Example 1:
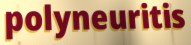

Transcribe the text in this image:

polyneuritis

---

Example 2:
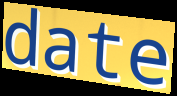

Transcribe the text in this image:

date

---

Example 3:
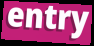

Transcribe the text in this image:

entry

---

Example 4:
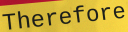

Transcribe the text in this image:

Therefore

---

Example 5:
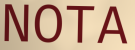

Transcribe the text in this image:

NOTA